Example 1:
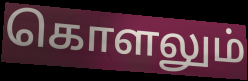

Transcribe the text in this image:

கொளலும்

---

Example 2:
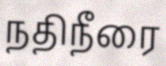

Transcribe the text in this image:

நதிநீரை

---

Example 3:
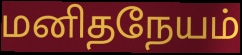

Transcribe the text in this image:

மனிதநேயம்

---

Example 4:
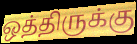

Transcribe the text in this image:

ஒத்திருக்கு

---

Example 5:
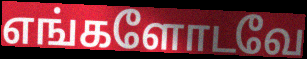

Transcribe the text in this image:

எங்களோடவே